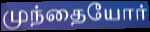
முந்தையோர்